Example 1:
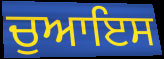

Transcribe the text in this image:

ਚੁਆਇਸ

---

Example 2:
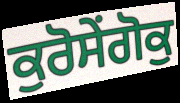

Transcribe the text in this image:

ਕੁਰੋਸੇਂਗੋਕੁ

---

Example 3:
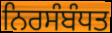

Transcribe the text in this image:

ਨਿਰਸੰਬੰਧਤ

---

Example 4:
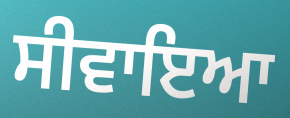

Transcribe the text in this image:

ਸੀਵਾਇਆ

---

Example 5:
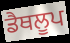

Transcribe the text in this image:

ਡੈਥਲੂਪ